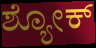
ಶ್ಯೋಕ್